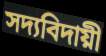
সদ্যবিদায়ী